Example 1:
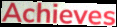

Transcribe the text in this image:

Achieves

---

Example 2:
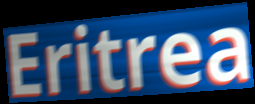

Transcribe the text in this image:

Eritrea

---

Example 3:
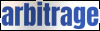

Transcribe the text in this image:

arbitrage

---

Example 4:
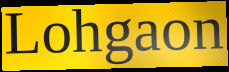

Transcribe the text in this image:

Lohgaon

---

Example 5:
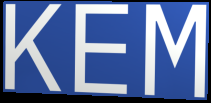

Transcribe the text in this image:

KEM